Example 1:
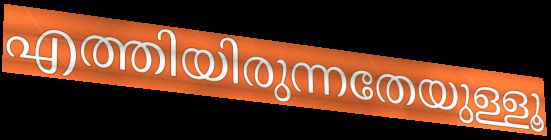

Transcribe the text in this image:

എത്തിയിരുന്നതേയുള്ളൂ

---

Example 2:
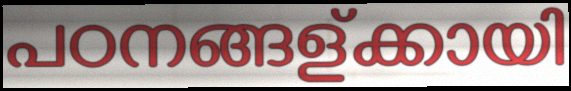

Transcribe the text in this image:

പഠനങ്ങള്ക്കായി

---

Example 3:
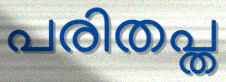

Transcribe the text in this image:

പരിതപ്ത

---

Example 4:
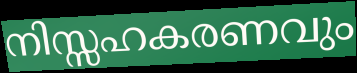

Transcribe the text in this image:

നിസ്സഹകരണവും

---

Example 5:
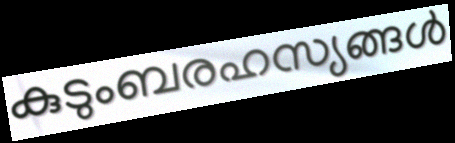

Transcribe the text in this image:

കുടുംബരഹസ്യങ്ങൾ